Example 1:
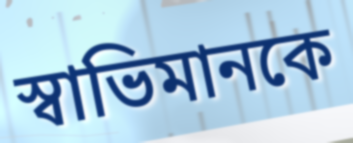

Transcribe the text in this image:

স্বাভিমানকে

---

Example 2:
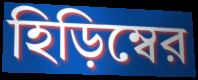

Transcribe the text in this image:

হিড়িম্বের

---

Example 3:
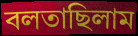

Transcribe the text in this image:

বলতাছিলাম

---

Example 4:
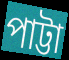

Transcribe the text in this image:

পাট্টা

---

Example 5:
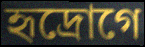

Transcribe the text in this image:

হৃদ্রোগে